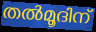
തൽമൂദിന്